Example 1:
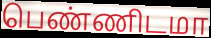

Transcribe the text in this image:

பெண்ணிடமா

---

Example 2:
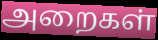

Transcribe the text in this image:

அறைகள்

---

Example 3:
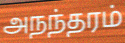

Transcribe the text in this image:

அநந்தரம்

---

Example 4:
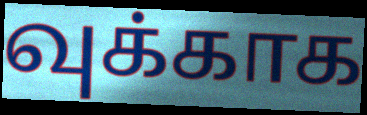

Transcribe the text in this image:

வுக்காக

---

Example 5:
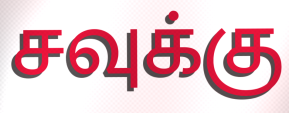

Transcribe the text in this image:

சவுக்கு